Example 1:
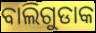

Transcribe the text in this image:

ବାଲିଗୁଡାକ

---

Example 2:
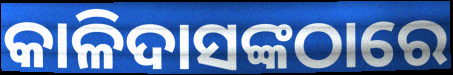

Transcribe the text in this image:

କାଳିଦାସଙ୍କଠାରେ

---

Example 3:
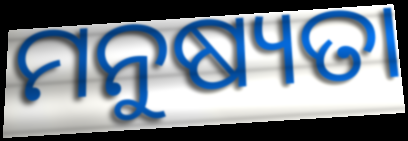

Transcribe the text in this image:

ମନୁଷ୍ୟତା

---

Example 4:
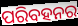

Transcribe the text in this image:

ପରିବହନର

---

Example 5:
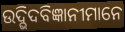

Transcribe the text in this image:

ଉଦ୍ଭିଦବିଜ୍ଞାନୀମାନେ